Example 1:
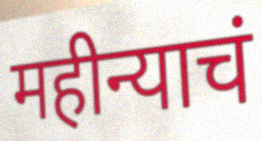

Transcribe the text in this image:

महीन्याचं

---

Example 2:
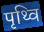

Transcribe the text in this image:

पृथ्वि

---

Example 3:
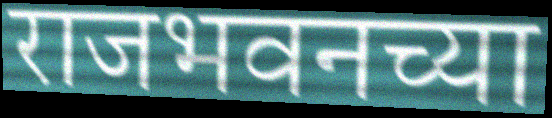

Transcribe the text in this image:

राजभवनच्या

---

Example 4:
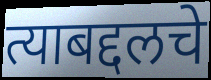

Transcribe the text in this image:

त्याबद्दलचे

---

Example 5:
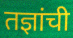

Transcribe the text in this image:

तज्ञांची